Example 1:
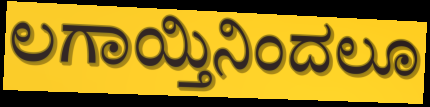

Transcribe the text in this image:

ಲಗಾಯ್ತಿನಿಂದಲೂ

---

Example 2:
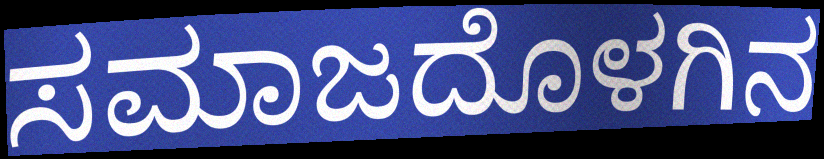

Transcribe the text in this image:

ಸಮಾಜದೊಳಗಿನ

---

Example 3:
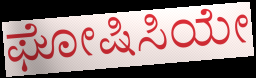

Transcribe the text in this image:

ಘೋಷಿಸಿಯೇ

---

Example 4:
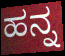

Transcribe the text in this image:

ಹನ್ನ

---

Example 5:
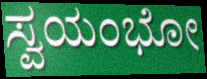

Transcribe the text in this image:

ಸ್ವಯಂಭೋ